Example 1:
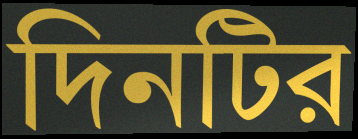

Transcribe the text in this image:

দিনটির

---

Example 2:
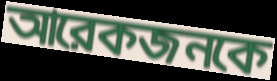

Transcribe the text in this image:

আরেকজনকে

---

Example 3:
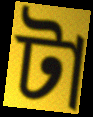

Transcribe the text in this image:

টা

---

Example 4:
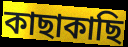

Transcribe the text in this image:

কাছাকাছি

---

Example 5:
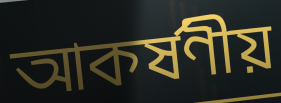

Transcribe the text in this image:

আকর্ষণীয়